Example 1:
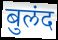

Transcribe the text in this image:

बुलंद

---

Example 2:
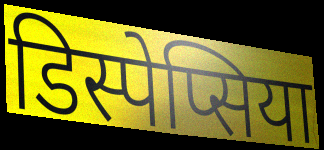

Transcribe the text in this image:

डिस्पेप्सिया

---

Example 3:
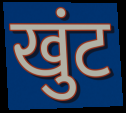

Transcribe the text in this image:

खुंट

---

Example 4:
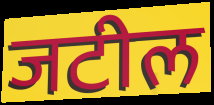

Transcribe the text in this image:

जटील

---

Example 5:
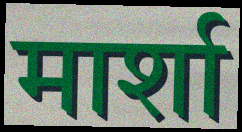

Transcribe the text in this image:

मार्शा